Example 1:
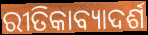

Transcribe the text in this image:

ରୀତିକାବ୍ୟାଦର୍ଶ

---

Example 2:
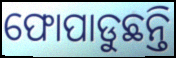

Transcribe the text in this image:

ଫୋପାଡୁଛନ୍ତି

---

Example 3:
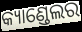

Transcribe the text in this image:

କ୍ୟାଣ୍ଡେଲର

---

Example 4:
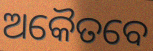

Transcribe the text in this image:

ଅକୈତବେ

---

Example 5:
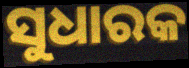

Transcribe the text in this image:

ସୁଧାରକ